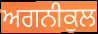
ਅਗਨੀਕੁਲ